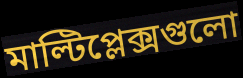
মাল্টিপ্লেক্সগুলো